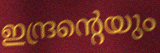
ഇന്ദ്രന്റെയും